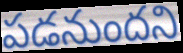
పడనుందని